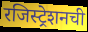
रजिस्ट्रेशनची